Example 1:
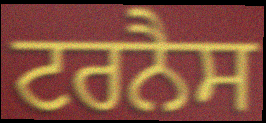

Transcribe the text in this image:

ਟਰਨੈਸ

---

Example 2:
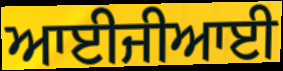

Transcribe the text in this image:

ਆਈਜੀਆਈ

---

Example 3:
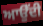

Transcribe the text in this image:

ਆਉੱਦੀ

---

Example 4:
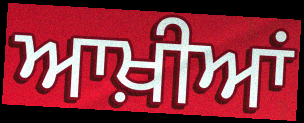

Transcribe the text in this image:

ਆਖ਼ੀਆਂ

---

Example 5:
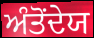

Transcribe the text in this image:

ਅੰਤੋਂਦੇਯ